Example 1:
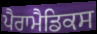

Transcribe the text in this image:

ਪੈਰਾਮੈਡਿਕਸ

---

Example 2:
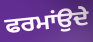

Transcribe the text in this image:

ਫਰਮਾਂਉਦੇ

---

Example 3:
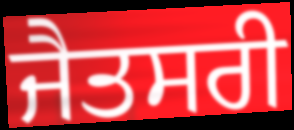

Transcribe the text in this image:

ਜੈਤਸਰੀ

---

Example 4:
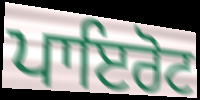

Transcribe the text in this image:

ਪਾਇਰੋਟ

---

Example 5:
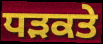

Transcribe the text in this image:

ਧੜਕਤੇ